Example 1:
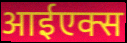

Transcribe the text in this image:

आईएक्स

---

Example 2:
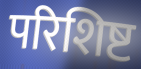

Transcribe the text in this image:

परिशिष्ट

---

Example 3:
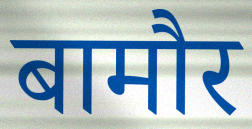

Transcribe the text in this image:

बामौर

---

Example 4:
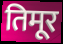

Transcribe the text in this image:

तिमूर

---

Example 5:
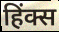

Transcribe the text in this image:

हिंक्स